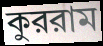
কুররাম